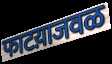
फाटय़ाजवळ